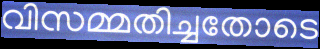
വിസമ്മതിച്ചതോടെ